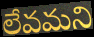
లేవమని